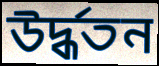
উর্দ্ধতন